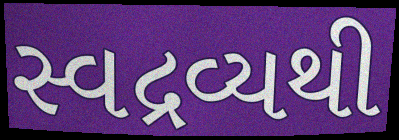
સ્વદ્રવ્યથી